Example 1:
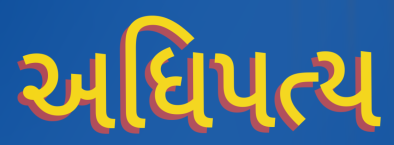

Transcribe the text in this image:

અધિપત્ય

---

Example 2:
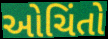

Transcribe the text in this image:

ઓચિંતો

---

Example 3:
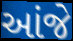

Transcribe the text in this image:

આંજે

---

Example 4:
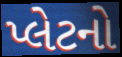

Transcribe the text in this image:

પ્લેટનો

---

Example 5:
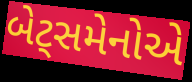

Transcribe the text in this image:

બેટ્સમેનોએ